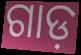
ଗାଡ଼